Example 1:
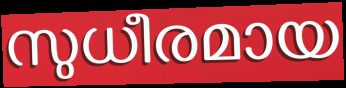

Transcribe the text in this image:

സുധീരമായ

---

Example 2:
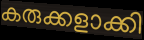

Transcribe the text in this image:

കരുക്കളാക്കി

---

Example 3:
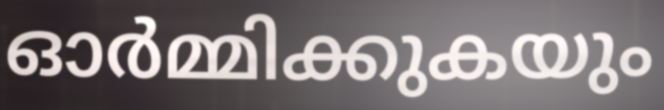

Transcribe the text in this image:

ഓർമ്മിക്കുകയും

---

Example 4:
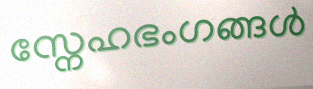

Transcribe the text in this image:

സ്നേഹഭംഗങ്ങൾ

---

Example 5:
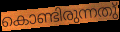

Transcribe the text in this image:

കൊണ്ടിരുന്നതു്